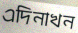
এদিনাখন